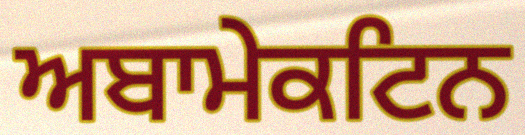
ਅਬਾਮੇਕਟਿਨ